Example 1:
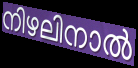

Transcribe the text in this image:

നിഴലിനാൽ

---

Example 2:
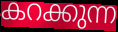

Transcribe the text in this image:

കറക്കുന്ന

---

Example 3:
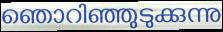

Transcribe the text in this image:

ഞൊറിഞ്ഞുടുക്കുന്നു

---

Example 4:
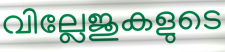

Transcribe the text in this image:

വില്ലേജുകളുടെ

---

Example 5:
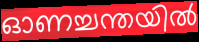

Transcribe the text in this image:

ഓണച്ചന്തയിൽ